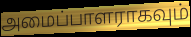
அமைப்பாளராகவும்